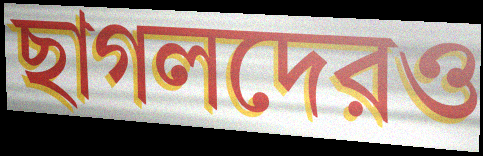
ছাগলদেরও